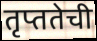
तृप्ततेची